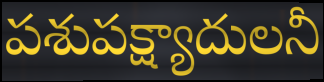
పశుపక్ష్యాదులనీ